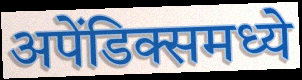
अपेंडिक्समध्ये